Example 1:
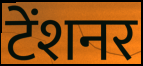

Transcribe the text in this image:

टेंशनर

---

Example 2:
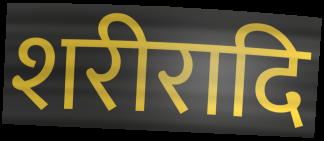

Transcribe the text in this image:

शरीरादि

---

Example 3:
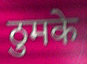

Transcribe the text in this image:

ठुमके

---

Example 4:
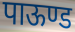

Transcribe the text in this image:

पाऊण्ड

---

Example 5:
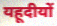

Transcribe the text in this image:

यहूदीयों